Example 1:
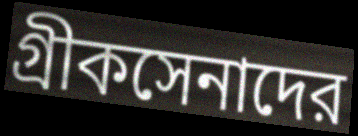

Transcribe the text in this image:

গ্রীকসেনাদের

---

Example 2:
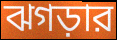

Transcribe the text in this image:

ঝগড়ার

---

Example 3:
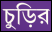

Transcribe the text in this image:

চুড়ির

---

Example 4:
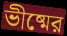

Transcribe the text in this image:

ভীষ্মের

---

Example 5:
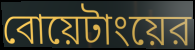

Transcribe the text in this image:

বোয়েটাংয়ের